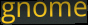
gnome